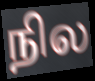
நில